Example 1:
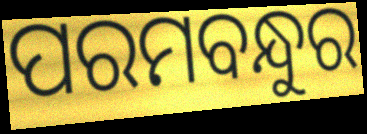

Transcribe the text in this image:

ପରମବନ୍ଧୁର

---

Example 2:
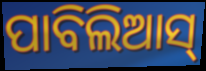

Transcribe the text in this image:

ପାବିଲିଆସ୍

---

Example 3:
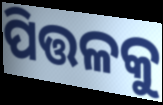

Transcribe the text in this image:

ପିତ୍ତଳକୁ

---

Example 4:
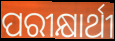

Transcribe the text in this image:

ପରୀକ୍ଷାର୍ଥୀ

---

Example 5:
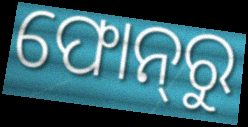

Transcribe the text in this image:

ଫୋନ୍‌ରୁ